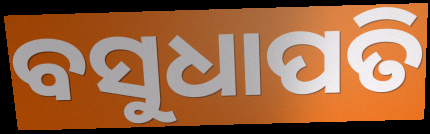
ବସୁଧାପତି